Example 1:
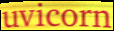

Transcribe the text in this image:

uvicorn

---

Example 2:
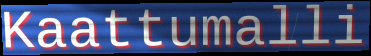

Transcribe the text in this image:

Kaattumalli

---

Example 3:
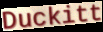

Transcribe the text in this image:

Duckitt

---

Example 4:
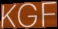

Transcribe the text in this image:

KGF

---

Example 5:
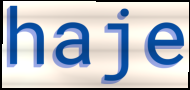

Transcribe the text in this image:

haje